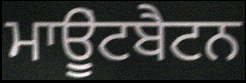
ਮਾਉੂਂਟਬੈਟਨ